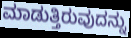
ಮಾಡುತ್ತಿರುವುದನ್ನು